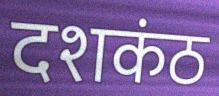
दशकंठ